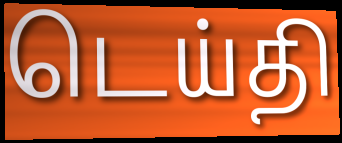
டெய்தி